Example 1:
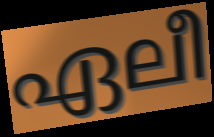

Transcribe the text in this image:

ഏലീ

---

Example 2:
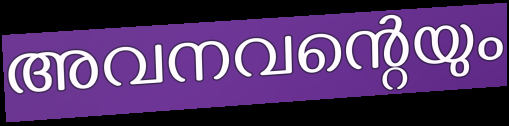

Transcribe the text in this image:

അവനവന്റെയും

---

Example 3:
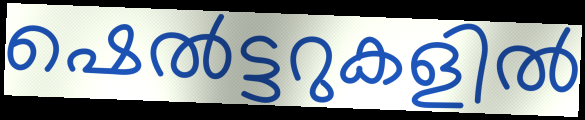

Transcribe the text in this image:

ഷെൽട്ടറുകളിൽ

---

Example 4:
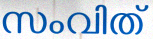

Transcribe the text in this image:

സംവിത്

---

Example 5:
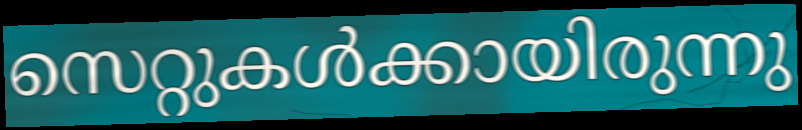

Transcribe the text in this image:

സെറ്റുകൾക്കായിരുന്നു